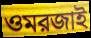
ওমরজাই